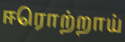
ஈரொற்றாய்